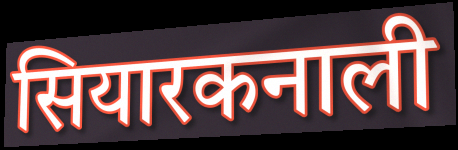
सियारकनाली